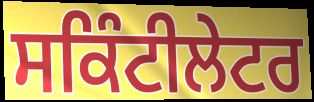
ਸਕਿੰਟੀਲੇਟਰ